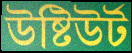
উষ্টিউৰ্ট